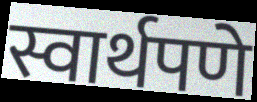
स्वार्थपणे